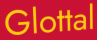
Glottal